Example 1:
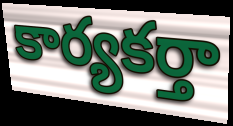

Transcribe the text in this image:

కార్యకర్తా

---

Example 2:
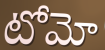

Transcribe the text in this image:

టోమో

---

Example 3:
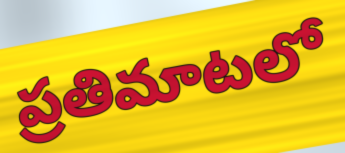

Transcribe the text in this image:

ప్రతిమాటలో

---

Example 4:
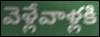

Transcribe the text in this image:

వెళ్లేవాళ్లకి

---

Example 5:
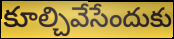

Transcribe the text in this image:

కూల్చివేసేందుకు